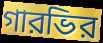
গারভির